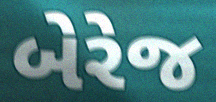
બેરેજ